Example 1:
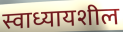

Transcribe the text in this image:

स्वाध्यायशील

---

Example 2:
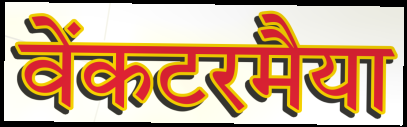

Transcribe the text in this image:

वेंकटरमैया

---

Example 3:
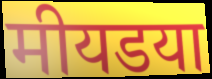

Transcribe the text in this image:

मीयडया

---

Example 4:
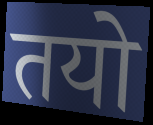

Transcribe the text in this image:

तयो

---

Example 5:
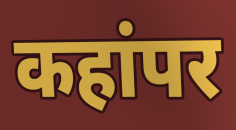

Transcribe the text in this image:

कहांपर